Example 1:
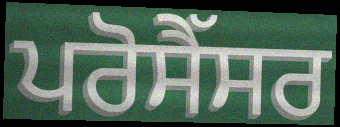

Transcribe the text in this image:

ਪਰੋਸੈੱਸਰ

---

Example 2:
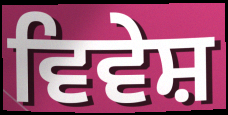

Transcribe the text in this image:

ਵਿਵੇਸ਼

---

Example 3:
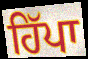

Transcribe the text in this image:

ਹਿੱਪਾ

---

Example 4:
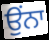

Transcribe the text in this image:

ਉੰਨਾ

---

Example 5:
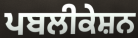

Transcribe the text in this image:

ਪਬਲੀਕੇਸ਼ਨ